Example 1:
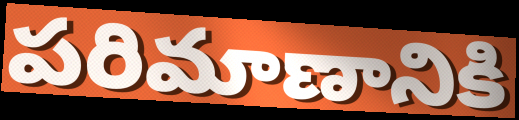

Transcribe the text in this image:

పరిమాణానికి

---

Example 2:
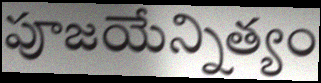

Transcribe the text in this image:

పూజయేన్నిత్యం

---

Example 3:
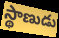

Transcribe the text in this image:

స్థాణుడు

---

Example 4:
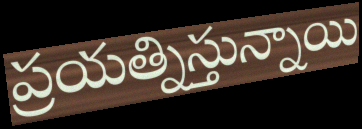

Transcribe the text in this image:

ప్రయత్నిస్తున్నాయి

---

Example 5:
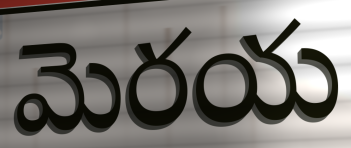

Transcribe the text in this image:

మెరయ